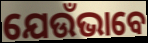
ଯେଉଁଭାବେ